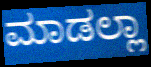
ಮಾಡಲ್ಲಾ